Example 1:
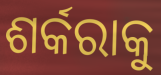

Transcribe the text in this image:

ଶର୍କରାକୁ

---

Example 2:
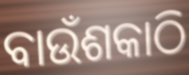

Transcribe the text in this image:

ବାଉଁଶକାଠି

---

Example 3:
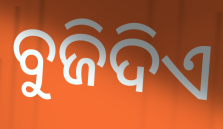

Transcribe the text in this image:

ବୁଜିଦିଏ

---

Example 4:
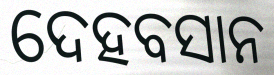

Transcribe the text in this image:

ଦେହବସାନ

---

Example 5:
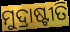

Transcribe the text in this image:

ମୁଦ୍ରାଷ୍ଟୀତି